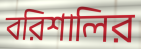
বরিশালির